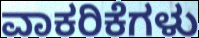
ವಾಕರಿಕೆಗಳು